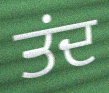
ਤਂਦ